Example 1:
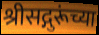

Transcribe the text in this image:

श्रीसद्गुरूंच्या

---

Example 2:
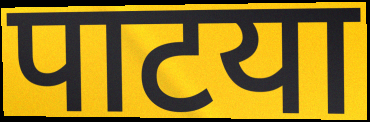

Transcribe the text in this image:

पाटया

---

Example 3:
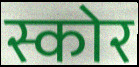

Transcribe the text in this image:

स्कोर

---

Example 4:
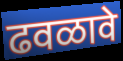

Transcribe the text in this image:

ढवळावे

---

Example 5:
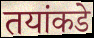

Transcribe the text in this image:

तयांकडे